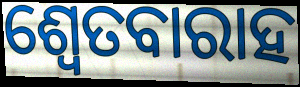
ଶ୍ଵେତବାରାହ